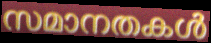
സമാനതകൾ